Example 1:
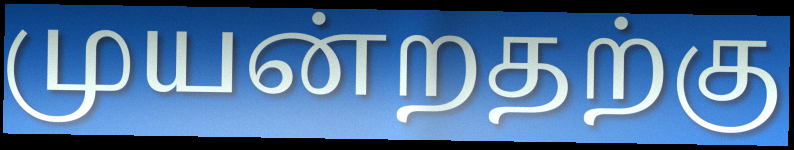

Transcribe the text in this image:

முயன்றதற்கு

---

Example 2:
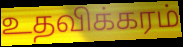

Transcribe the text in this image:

உதவிக்கரம்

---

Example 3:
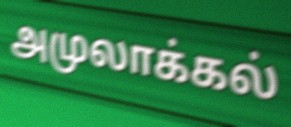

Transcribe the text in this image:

அமுலாக்கல்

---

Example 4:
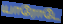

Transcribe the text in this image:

யாரோடே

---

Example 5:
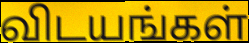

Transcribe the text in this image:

விடயங்கள்